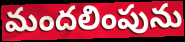
మందలింపును